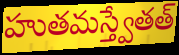
హుతమస్త్వేతత్